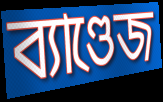
ব্যাণ্ডেজ